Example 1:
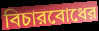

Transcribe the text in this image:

বিচারবোধের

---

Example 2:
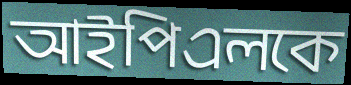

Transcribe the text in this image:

আইপিএলকে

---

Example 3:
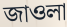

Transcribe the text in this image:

জাওলা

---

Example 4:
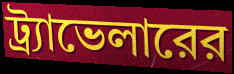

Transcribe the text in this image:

ট্র্যাভেলারের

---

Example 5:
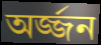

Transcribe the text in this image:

অর্জ্জন